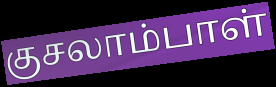
குசலாம்பாள்